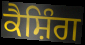
ਕੈਸ਼ਿੰਗ